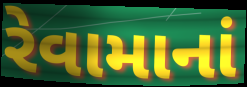
રેવામાનાં